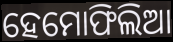
ହେମୋଫିଲିଆ